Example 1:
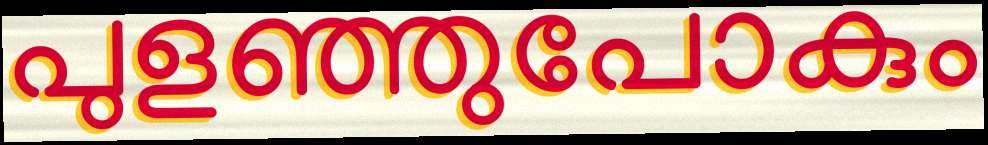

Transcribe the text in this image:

പുളഞ്ഞുപോകും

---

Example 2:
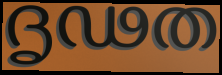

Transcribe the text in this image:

ദൃഢത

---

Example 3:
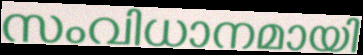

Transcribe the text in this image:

സംവിധാനമായി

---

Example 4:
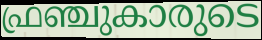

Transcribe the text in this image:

ഫ്രഞ്ചുകാരുടെ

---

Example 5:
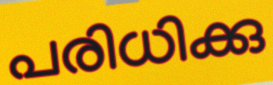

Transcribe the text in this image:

പരിധിക്കു